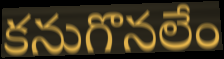
కనుగొనలేం